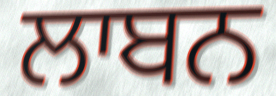
ਲਾਬਨ